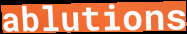
ablutions